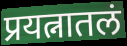
प्रयत्नातलं